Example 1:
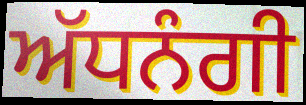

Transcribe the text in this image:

ਅੱਧਨੰਗੀ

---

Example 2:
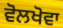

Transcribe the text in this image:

ਵੋਲਖੋਵਾ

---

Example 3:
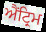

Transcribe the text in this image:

ਐਂਟ੍ਰਿਮ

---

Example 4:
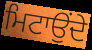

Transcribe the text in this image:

ਮਿਟਾਉਂਦੇ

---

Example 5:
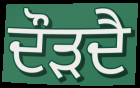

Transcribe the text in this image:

ਦੌੜਦੈ